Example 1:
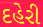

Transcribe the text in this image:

દહેરી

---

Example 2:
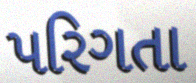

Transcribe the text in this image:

પરિગતા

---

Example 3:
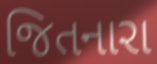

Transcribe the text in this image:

જિતનારા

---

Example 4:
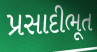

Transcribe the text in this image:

પ્રસાદીભૂત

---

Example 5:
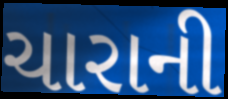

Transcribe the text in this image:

ચારાની